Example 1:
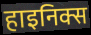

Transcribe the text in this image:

हाइनिक्स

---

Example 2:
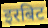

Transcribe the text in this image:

इरबिट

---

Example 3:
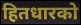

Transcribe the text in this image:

हितधारको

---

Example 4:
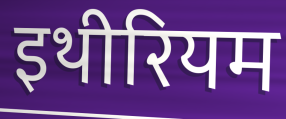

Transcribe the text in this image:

इथीरियम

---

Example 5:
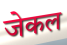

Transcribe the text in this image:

जेकल